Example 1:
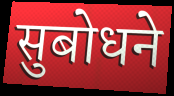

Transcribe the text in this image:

सुबोधने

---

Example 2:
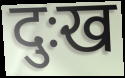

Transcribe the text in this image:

दुःख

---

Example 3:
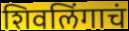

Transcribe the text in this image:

शिवलिंगाचं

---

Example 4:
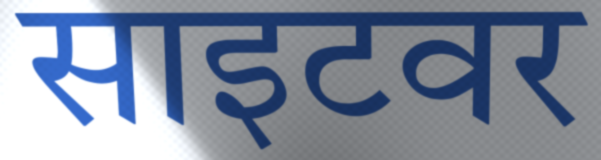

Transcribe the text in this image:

साइटवर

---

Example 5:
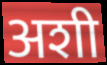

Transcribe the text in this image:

अशी